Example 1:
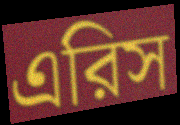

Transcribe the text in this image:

এরিস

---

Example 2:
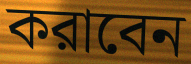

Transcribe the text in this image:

করাবেন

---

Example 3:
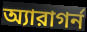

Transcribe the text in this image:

অ্যারাগর্ন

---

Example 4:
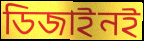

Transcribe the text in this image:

ডিজাইনই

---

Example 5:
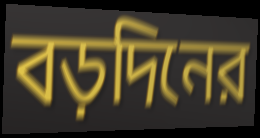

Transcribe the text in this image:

বড়দিনের